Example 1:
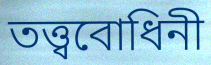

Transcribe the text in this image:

তত্ত্ববোধিনী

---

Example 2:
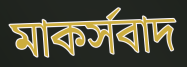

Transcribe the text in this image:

মাকর্সবাদ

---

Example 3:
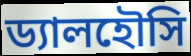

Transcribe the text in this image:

ড্যালহৌসি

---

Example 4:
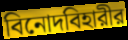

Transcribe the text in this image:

বিনোদবিহারীর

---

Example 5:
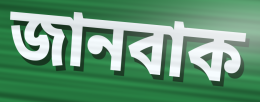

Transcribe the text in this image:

জানবাক